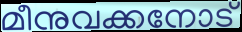
മീനുവക്കനോട്